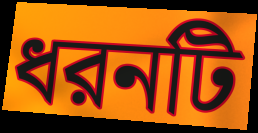
ধরনটি